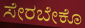
ಸೇರಬೇಕೊ